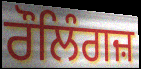
ਰੌਲਿੰਗਜ਼